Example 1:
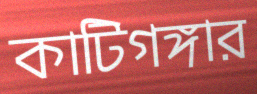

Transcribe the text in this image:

কাটিগঙ্গার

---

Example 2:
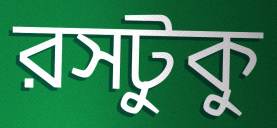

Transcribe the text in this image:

রসটুকু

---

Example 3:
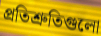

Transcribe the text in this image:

প্রতিশ্রুতিগুলো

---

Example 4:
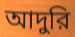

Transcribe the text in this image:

আদুরি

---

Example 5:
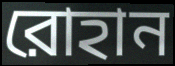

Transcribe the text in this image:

রোহান